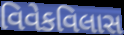
વિવેકવિલાસ